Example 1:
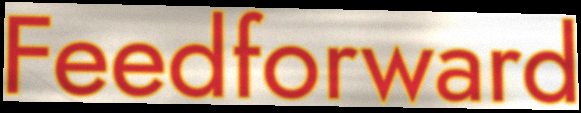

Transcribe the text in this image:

Feedforward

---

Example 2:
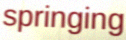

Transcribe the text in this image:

springing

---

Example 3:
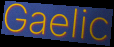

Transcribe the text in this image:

Gaelic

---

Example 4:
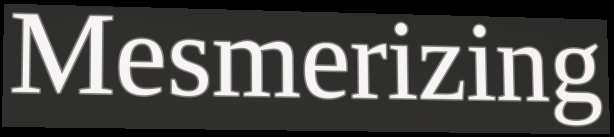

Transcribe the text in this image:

Mesmerizing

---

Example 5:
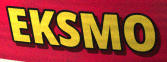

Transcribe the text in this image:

EKSMO